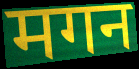
मगन